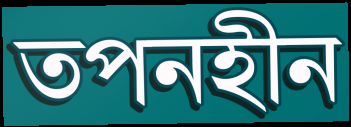
তপনহীন